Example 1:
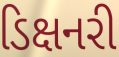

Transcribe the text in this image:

ડિક્ષનરી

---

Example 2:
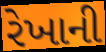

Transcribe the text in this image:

રેખાની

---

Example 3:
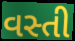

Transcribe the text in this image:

વસ્તી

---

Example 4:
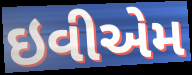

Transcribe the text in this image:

ઇવીએમ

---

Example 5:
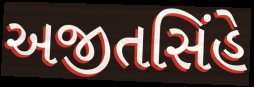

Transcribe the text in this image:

અજીતસિંહે